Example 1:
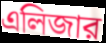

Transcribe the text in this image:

এলিজার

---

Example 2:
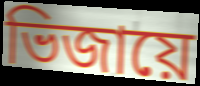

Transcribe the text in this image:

ভিজায়ে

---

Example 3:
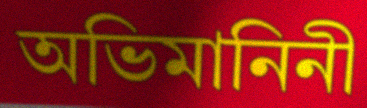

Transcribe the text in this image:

অভিমানিনী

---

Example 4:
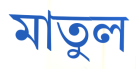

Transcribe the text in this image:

মাতুল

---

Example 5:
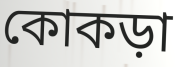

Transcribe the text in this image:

কোকড়া